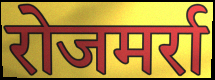
रोजमर्रा